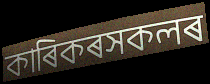
কাৰিকৰসকলৰ